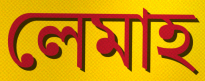
লেমাহ